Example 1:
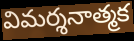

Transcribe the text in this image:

విమర్శనాత్మక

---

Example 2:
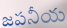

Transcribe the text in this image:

జపనీయ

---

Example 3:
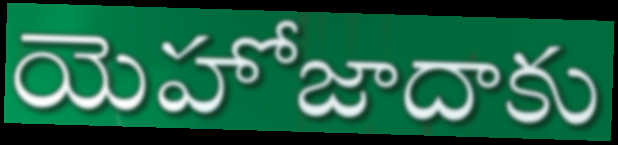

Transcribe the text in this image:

యెహోజాదాకు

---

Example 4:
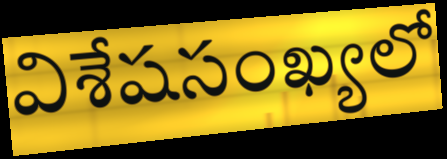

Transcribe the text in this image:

విశేషసంఖ్యలో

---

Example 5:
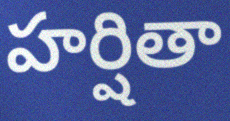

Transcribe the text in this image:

హర్షితా